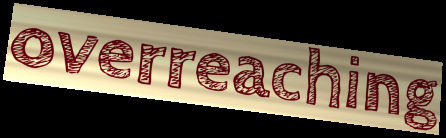
overreaching